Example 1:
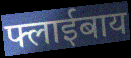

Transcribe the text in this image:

फ्लाईबाय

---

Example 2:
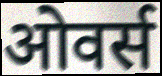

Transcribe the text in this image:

ओवर्स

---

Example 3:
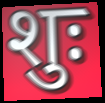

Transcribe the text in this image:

शुः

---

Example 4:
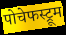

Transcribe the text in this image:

पोचेफस्ट्रूम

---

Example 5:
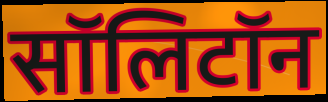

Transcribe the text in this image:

सॉलिटॉन